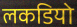
लकडियो